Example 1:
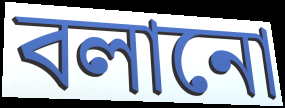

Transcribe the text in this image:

বলানো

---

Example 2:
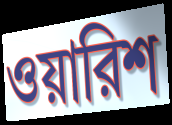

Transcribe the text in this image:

ওয়ারিশ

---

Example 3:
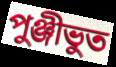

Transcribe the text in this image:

পুঞ্জীভুত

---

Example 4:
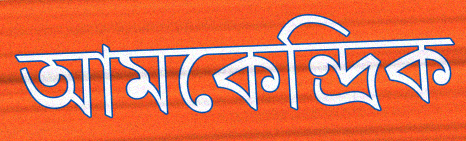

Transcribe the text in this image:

আমকেন্দ্রিক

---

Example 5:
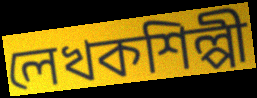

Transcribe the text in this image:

লেখকশিল্পী